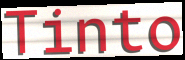
Tinto